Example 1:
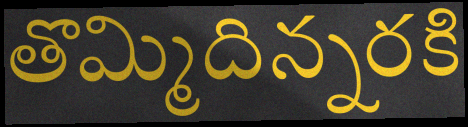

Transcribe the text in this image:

తొమ్మిదిన్నరకి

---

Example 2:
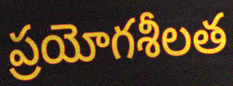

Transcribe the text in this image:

ప్రయోగశీలత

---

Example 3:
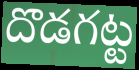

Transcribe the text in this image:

దొడగట్ట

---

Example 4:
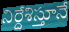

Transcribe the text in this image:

నిర్దేశిస్తూనే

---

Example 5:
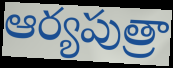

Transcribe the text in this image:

ఆర్యపుత్రా